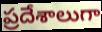
ప్రదేశాలుగా